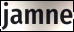
jamne